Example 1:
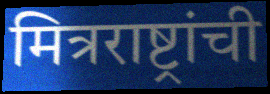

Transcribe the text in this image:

मित्रराष्ट्रांची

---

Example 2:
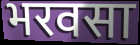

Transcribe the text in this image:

भरवसा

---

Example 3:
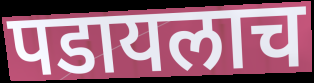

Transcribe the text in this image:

पडायलाच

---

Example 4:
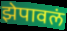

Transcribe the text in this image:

झेपावलं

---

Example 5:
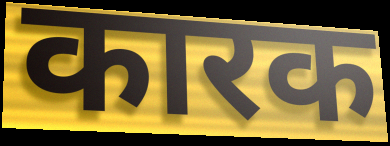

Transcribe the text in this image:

कारक